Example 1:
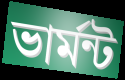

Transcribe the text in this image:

ভার্মন্ট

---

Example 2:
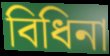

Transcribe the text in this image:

বিধিনা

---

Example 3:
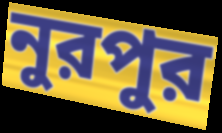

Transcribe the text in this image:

নুরপুর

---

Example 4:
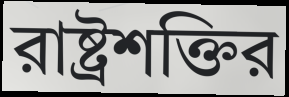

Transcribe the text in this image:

রাষ্ট্রশক্তির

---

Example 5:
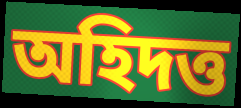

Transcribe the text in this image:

অহিদত্ত